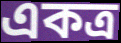
একত্ৰ